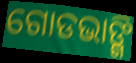
ଗୋଡଭାଙ୍ଗି